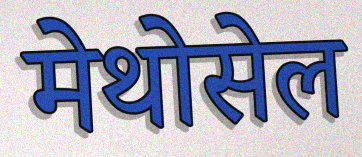
मेथोसेल